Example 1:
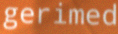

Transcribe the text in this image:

gerimed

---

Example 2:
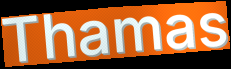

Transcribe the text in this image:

Thamas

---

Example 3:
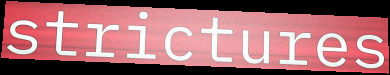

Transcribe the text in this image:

strictures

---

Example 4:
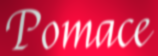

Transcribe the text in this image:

Pomace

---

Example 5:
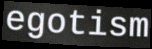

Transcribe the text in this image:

egotism